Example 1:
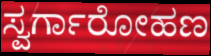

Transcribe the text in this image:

ಸ್ವರ್ಗಾರೋಹಣ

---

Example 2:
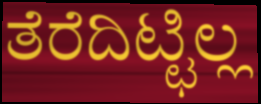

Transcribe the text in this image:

ತೆರೆದಿಟ್ಟಿಲ್ಲ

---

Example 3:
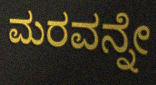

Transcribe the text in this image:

ಮರವನ್ನೇ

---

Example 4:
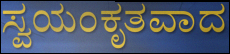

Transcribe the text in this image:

ಸ್ವಯಂಕೃತವಾದ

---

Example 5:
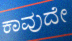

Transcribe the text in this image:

ಕಾವುದೇ